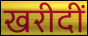
खरीदीं